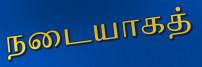
நடையாகத்